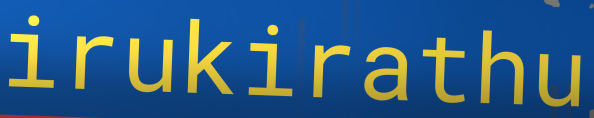
irukirathu